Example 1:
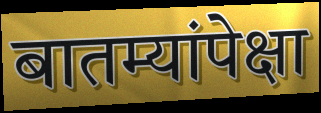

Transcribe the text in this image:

बातम्यांपेक्षा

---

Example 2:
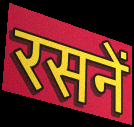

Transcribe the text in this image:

रसनें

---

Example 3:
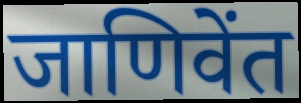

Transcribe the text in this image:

जाणिवेंत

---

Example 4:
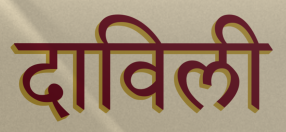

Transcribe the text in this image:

दाविली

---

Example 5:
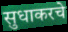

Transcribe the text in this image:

सुधाकरचे